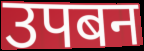
उपबन